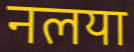
नलया